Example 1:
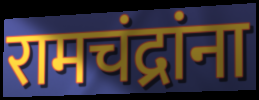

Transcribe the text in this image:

रामचंद्रांना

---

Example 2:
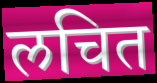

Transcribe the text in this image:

लचित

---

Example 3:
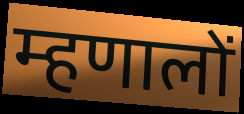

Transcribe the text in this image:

म्हणालों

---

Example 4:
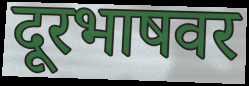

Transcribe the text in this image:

दूरभाषवर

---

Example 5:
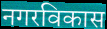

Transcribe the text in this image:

नगरविकास